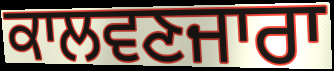
ਕਾਲਵਣਜਾਰਾ